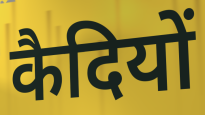
कैदियों